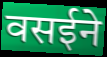
वसईने